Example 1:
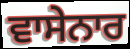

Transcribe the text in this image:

ਵਾਸੇਨਾਰ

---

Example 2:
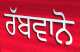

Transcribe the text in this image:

ਰੱਬਵਾਨੋ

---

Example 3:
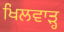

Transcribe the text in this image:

ਖਿਲਵਾੜ੍ਹ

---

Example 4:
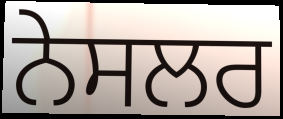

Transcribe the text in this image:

ਨੇਸਲਰ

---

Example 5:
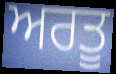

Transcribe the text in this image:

ਅਰਤੂ